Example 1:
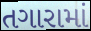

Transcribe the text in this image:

તગારામાં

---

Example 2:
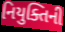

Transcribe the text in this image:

નિયુક્તિની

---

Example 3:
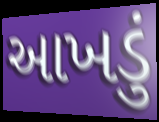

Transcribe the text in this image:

આખડું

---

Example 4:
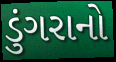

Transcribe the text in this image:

ડુંગરાનો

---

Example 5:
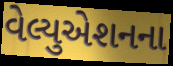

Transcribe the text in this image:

વેલ્યુએશનના